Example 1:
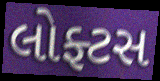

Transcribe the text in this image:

લોફ્ટસ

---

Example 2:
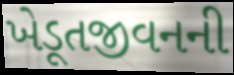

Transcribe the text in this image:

ખેડૂતજીવનની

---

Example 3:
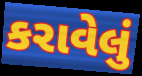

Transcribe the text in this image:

કરાવેલું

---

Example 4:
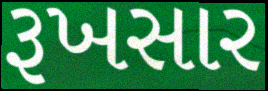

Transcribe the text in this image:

રૂખસાર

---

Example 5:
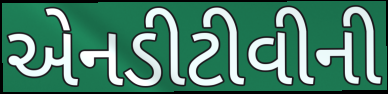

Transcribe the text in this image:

એનડીટીવીની